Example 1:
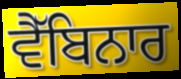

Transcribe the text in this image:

ਵੈੱਬਿਨਾਰ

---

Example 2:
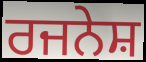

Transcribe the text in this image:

ਰਜਨੇਸ਼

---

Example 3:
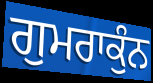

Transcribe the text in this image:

ਗੁਮਰਾਕੁੰਨ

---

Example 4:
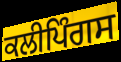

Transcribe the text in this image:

ਕਲੀਪਿੰਗਸ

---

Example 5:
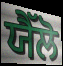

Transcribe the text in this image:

ਯੈੱਲੋ